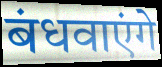
बंधवाएंगे